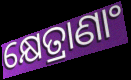
କ୍ଷେତ୍ରାଣାଂ